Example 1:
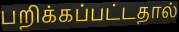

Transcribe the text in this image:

பறிக்கப்பட்டதால்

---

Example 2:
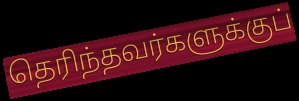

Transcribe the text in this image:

தெரிந்தவர்களுக்குப்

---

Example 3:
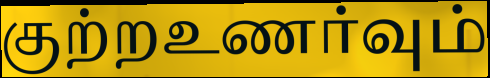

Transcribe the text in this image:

குற்றஉணர்வும்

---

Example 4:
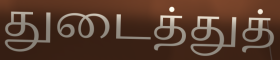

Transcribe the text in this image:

துடைத்துத்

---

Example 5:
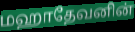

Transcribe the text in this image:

மஹாதேவனின்